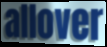
allover